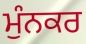
ਮੁੰਨਕਰ